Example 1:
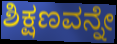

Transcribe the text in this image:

ಶಿಕ್ಷಣವನ್ನೇ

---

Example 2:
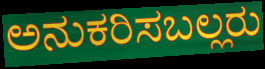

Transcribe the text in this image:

ಅನುಕರಿಸಬಲ್ಲರು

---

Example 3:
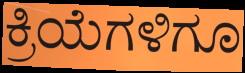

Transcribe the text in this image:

ಕ್ರಿಯೆಗಳಿಗೂ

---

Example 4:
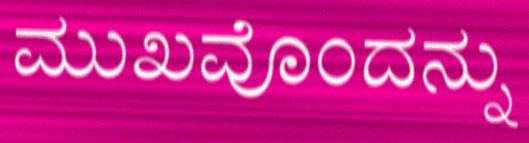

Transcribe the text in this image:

ಮುಖವೊಂದನ್ನು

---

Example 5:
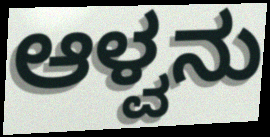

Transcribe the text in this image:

ಆಳ್ವನು